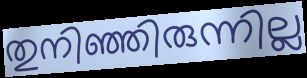
തുനിഞ്ഞിരുന്നില്ല